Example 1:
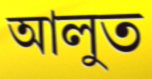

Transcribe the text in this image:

আলুত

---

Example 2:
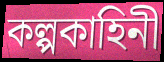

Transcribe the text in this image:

কল্পকাহিনী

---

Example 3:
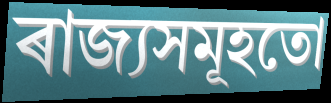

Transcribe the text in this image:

ৰাজ্যসমূহতো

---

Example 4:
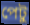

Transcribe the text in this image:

পেটু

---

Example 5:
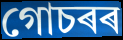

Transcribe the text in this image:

গোচৰৰ